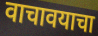
वाचावयाचा